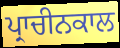
ਪ੍ਰਾਚੀਨਕਾਲ